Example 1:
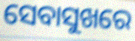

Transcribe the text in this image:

ସେବାସୁଖରେ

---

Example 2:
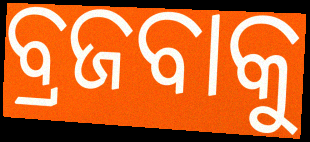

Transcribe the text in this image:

ବ୍ରଜବାକୁ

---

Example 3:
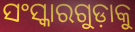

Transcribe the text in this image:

ସଂସ୍କାରଗୁଡ଼ାକୁ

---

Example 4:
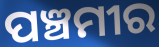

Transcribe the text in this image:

ପଞ୍ଚମୀର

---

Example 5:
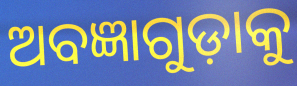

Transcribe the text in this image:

ଅବଜ୍ଞାଗୁଡ଼ାକୁ